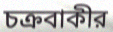
চক্রবাকীর